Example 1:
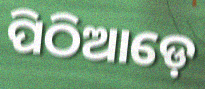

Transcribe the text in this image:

ପିଠିଆଡ଼େ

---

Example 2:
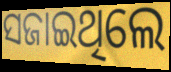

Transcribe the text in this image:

ସଜାଇଥିଲେ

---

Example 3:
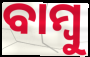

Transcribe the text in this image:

ବାମ୍ବୁ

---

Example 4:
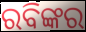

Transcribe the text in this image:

ରବିଙ୍କର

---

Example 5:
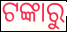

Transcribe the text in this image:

ଟଙ୍କାରୁ